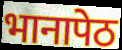
भानापेठ